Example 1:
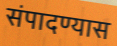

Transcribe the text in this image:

संपादण्यास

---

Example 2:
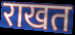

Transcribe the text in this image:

राखत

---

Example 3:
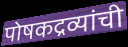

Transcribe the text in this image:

पोषकद्रव्यांची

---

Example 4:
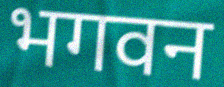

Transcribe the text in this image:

भगवन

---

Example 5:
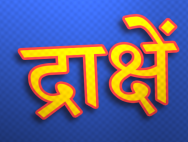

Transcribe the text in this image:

द्राक्षें